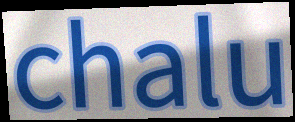
chalu